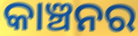
କାଞ୍ଚନର